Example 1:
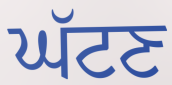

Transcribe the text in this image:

ਘੱਟਣ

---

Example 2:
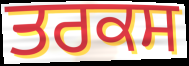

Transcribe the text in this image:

ਤਰਕਸ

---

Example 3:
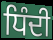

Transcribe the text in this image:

ਧਿੰਦੀ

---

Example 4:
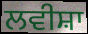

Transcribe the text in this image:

ਲਵੀਸ਼ਾ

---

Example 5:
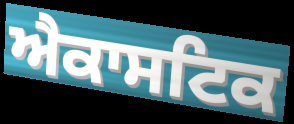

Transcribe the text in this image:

ਐਕਾਸਟਿਕ